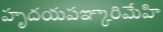
హృదయపఞ్కారిమేహి